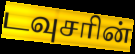
டவுசரின்